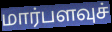
மார்பளவுச்